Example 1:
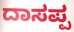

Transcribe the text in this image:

ದಾಸಪ್ಪ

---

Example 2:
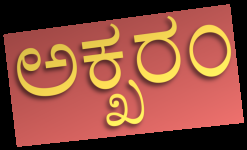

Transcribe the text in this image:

ಅಕ್ಖರಂ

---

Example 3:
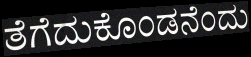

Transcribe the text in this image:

ತೆಗೆದುಕೊಂಡನೆಂದು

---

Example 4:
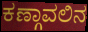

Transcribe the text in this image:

ಕಣ್ಗಾವಲಿನ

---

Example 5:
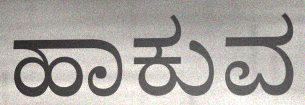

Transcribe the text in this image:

ಹಾಕುವ